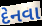
દેનવા